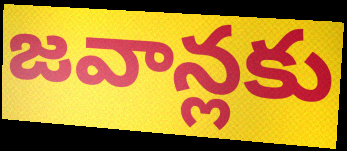
జవాన్లకు